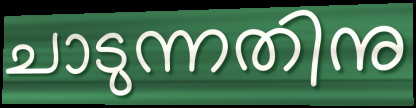
ചാടുന്നതിനു